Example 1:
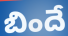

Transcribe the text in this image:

బిందే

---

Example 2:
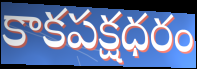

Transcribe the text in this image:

కాకపక్షధరం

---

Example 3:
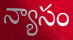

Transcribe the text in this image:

న్యాసం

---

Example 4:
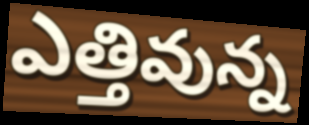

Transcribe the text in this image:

ఎత్తివున్న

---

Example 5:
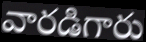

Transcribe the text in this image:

వారడిగారు